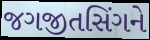
જગજીતસિંગને